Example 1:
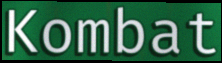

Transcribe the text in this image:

Kombat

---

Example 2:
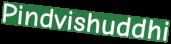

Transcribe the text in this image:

Pindvishuddhi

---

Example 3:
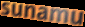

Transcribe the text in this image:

sunamu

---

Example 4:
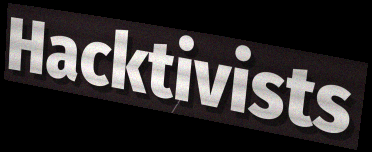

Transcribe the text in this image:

Hacktivists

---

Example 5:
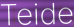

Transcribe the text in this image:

Teide